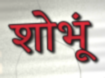
शोभूं